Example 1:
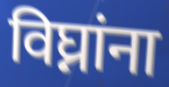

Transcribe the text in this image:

विघ्नांना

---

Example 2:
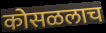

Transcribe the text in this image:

कोसळलाच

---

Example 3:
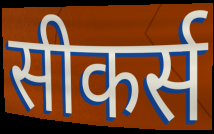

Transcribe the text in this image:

सीकर्स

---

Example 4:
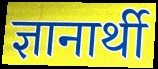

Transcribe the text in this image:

ज्ञानार्थी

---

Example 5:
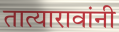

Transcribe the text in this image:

तात्यारावांनी